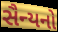
સૈન્યનો